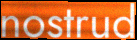
nostrud